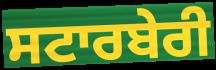
ਸਟਾਰਬੇਰੀ